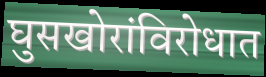
घुसखोरांविरोधात